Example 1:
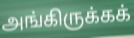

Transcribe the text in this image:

அங்கிருக்கக்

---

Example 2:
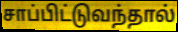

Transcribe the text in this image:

சாப்பிட்டுவந்தால்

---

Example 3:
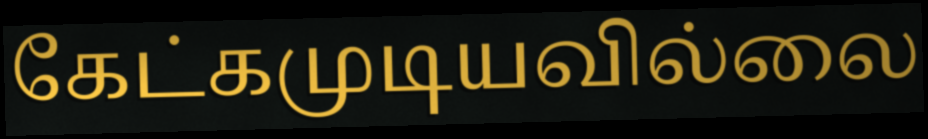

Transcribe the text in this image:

கேட்கமுடியவில்லை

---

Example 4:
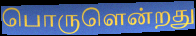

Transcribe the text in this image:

பொருளென்றது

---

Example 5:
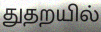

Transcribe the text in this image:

துதறயில்